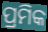
ପ୍ରମିକ